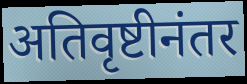
अतिवृष्टीनंतर